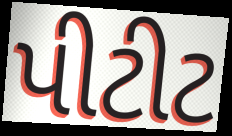
પીટીટ